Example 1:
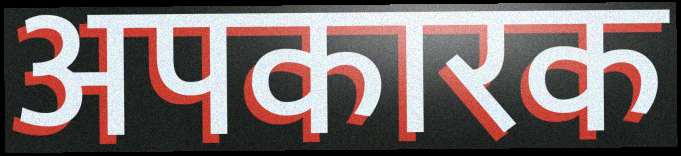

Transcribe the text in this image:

अपकारक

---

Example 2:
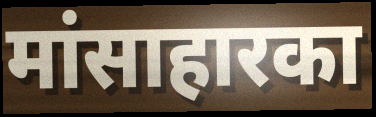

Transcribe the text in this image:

मांसाहारका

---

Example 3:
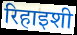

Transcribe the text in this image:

रिहाइशी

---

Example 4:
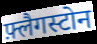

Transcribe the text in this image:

फ़्लैगस्टोन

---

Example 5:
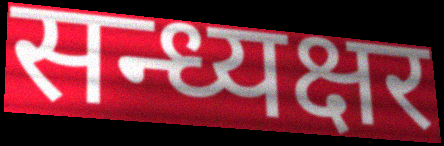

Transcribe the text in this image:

सन्ध्यक्षर